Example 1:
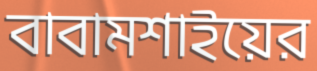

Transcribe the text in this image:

বাবামশাইয়ের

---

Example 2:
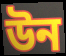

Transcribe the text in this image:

উন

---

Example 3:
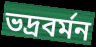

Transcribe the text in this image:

ভদ্রবর্মন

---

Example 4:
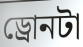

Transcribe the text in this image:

ড্রোনটা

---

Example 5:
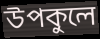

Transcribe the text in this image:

উপকুলে